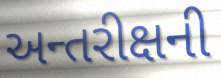
અન્તરીક્ષની